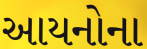
આયનોના